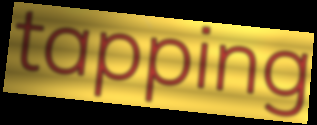
tapping